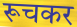
रूचकर